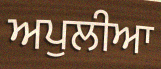
ਅਪੁਲੀਆ